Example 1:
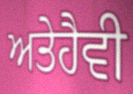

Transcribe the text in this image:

ਅਤੇਹੈਵੀ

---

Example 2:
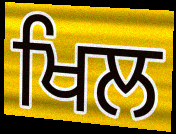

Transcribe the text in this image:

ਖਿਲ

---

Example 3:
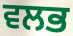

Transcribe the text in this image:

ਵਲਭ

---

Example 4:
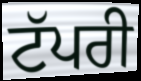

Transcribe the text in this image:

ਟੱਪਰੀ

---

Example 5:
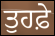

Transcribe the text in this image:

ਤੁਹਫ਼ੇ